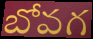
బోవగ